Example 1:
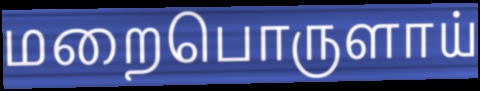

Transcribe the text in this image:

மறைபொருளாய்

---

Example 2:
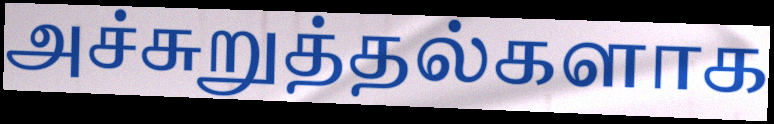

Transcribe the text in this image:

அச்சுறுத்தல்களாக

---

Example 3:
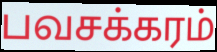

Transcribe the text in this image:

பவசக்கரம்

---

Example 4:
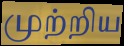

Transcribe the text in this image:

முற்றிய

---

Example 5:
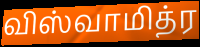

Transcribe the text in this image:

விஸ்வாமித்ர